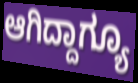
ಆಗಿದ್ದಾಗ್ಯೂ